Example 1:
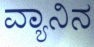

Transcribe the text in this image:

ವ್ಯಾನಿನ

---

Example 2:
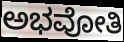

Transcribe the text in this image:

ಅಭವೋತಿ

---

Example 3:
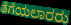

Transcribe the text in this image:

ತೆಗೆಯಲಾರರು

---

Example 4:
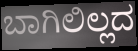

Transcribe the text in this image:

ಬಾಗಿಲಿಲ್ಲದ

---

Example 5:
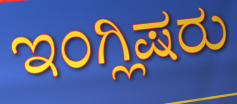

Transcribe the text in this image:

ಇಂಗ್ಲಿಷರು